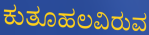
ಕುತೂಹಲವಿರುವ